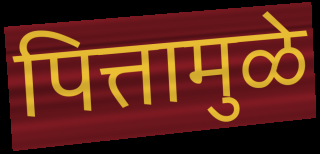
पित्तामुळे